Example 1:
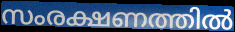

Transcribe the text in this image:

സംരക്ഷണത്തിൽ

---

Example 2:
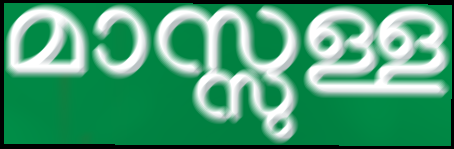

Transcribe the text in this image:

മാസ്സുള്ള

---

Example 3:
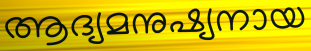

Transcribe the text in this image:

ആദ്യമനുഷ്യനായ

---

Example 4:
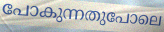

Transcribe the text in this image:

പോകുന്നതുപോലെ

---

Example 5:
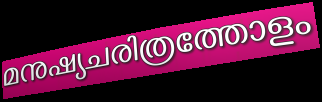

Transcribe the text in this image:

മനുഷ്യചരിത്രത്തോളം